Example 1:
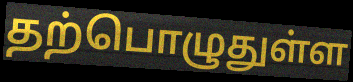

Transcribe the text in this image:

தற்பொழுதுள்ள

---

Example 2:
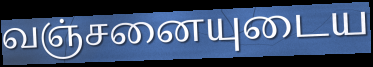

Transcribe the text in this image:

வஞ்சனையுடைய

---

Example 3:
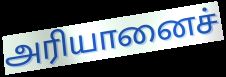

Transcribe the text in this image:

அரியானைச்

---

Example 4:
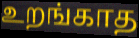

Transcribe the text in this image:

உறங்காத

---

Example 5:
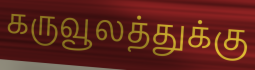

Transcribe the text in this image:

கருவூலத்துக்கு